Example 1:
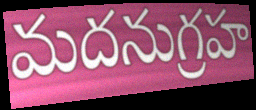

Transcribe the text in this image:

మదనుగ్రహ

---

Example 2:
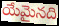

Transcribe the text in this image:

యేమైనది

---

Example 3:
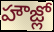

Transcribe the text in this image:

హౌజ్లో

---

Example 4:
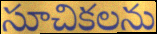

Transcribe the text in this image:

సూచికలను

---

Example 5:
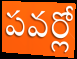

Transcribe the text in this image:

పవర్లో